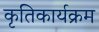
कृतिकार्यक्रम